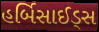
હર્બિસાઈડ્સ